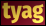
tyag